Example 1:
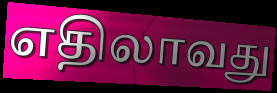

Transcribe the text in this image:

எதிலாவது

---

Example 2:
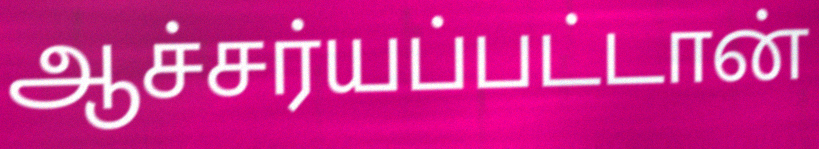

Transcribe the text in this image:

ஆச்சர்யப்பட்டான்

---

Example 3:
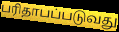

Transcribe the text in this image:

பரிதாபப்படுவது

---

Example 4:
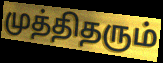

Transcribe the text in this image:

முத்திதரும்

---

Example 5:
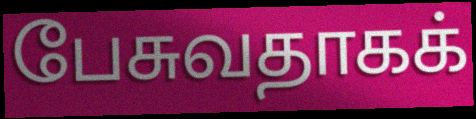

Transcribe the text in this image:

பேசுவதாகக்